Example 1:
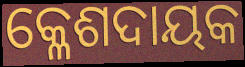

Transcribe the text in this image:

କ୍ଳେଶଦାୟକ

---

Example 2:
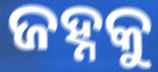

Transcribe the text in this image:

ଜହ୍ନକୁ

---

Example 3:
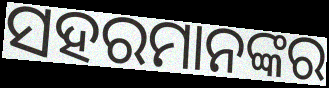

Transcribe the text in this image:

ସହରମାନଙ୍କର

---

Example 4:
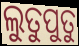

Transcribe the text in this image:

ଲୁତୁପୁତୁ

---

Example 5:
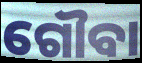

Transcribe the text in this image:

ଗୌବା